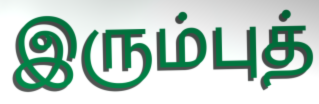
இரும்புத்